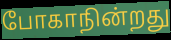
போகாநின்றது